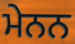
ਮੇਨਨ